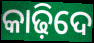
କାଢ଼ିଦେ